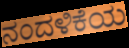
ನಂದಳಿಕೆಯ